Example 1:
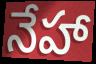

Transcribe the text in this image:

నేహా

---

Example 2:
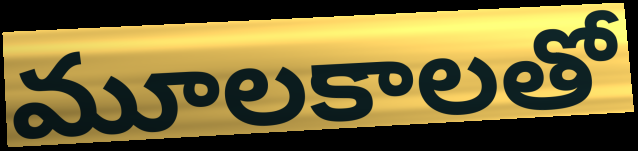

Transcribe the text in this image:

మూలకాలతో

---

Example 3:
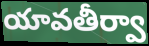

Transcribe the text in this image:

యావతీర్వా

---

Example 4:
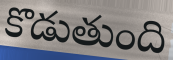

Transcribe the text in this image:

కొడుతుంది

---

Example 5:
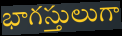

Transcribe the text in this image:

భాగస్తులుగా